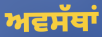
ਅਵਸੱਥਾਂ